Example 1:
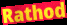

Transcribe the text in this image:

Rathod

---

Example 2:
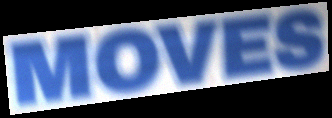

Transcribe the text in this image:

MOVES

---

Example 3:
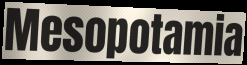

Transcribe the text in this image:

Mesopotamia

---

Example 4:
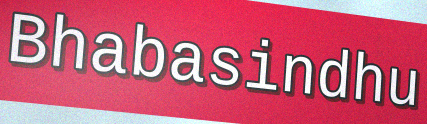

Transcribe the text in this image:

Bhabasindhu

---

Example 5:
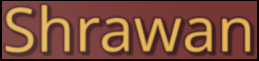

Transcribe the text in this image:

Shrawan